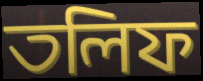
তলিফ